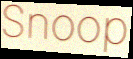
Snoop